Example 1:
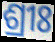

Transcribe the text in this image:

ଶ୍ରୀଃ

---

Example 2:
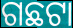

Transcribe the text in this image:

ଗଛଟା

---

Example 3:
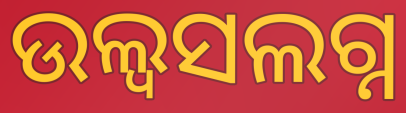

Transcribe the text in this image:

ଉଲ୍ୱସଲଗ୍ନ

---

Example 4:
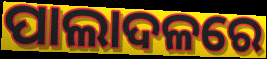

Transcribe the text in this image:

ପାଲାଦଳରେ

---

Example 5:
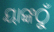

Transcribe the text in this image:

ୟାଙ୍କଠୁଁ